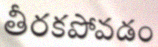
తీరకపోవడం